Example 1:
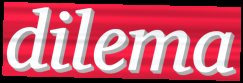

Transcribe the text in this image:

dilema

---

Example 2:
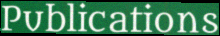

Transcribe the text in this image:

Publications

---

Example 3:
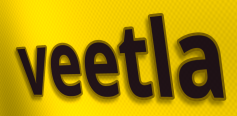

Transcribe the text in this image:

veetla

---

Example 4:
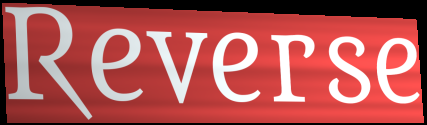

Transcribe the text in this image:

Reverse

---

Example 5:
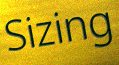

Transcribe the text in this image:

Sizing